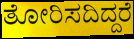
ತೋರಿಸದಿದ್ದರೆ